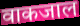
वाकजाल